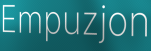
Empuzjon